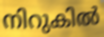
നിറുകിൽ